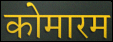
कोमारम